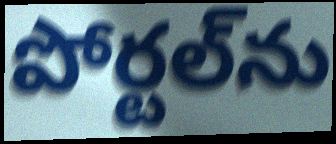
పోర్టల్‌ను